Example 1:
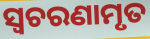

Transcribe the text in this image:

ସ୍ଵଚରଣାମୃତ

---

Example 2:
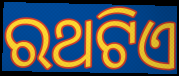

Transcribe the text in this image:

ରଥଟିଏ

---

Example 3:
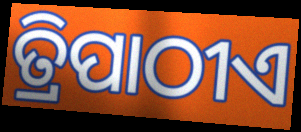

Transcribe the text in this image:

ତ୍ରିପାଠୀଏ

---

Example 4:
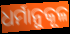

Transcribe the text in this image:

ଧର୍ମାନୁକୂଳ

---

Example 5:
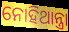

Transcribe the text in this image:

ନୋହିଥାନ୍ତ୍ରା